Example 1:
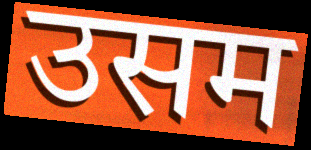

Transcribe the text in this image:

उसम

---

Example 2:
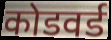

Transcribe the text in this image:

कोडवर्ड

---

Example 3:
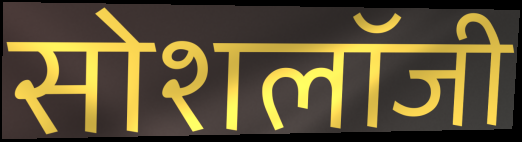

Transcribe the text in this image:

सोशलॉजी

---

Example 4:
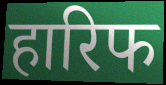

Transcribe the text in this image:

हारिफ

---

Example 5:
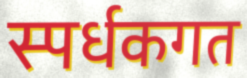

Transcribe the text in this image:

स्पर्धकगत